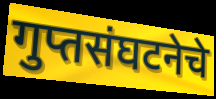
गुप्तसंघटनेचे